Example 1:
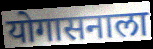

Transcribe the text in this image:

योगासनाला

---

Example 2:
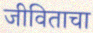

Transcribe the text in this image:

जीविताचा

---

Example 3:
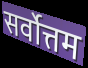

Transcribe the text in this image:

सर्वोत्तम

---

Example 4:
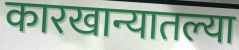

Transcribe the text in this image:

कारखान्यातल्या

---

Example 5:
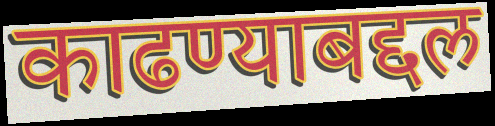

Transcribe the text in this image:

काढण्याबद्दल